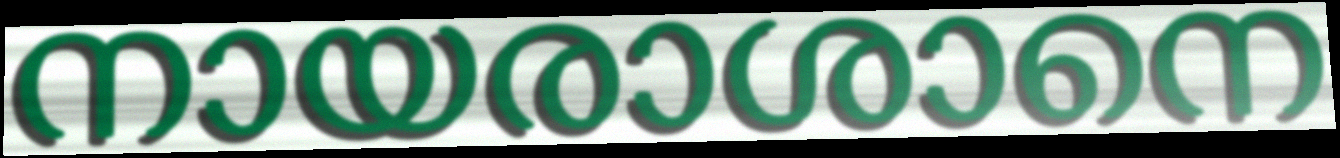
നായരാശാനെ